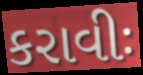
કરાવીઃ